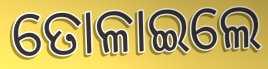
ତୋଳାଇଲେ